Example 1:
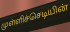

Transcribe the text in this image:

முள்ளிச்செடியின்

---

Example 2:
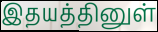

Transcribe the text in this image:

இதயத்தினுள்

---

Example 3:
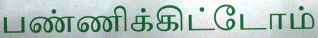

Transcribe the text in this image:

பண்ணிக்கிட்டோம்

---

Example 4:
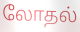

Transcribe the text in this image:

லோதல்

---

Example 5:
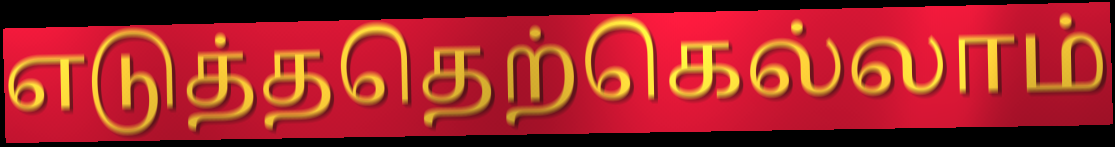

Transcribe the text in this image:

எடுத்ததெற்கெல்லாம்